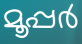
മൂപ്പർ